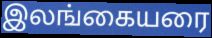
இலங்கையரை